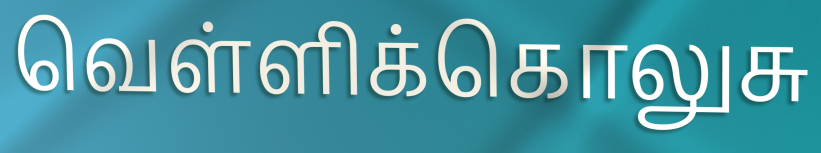
வெள்ளிக்கொலுசு